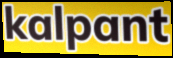
kalpant